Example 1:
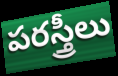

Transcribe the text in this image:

పరస్త్రీలు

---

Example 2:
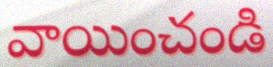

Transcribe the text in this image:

వాయించండి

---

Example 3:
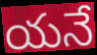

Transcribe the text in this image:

యనే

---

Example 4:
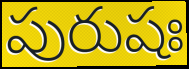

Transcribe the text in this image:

పురుషః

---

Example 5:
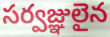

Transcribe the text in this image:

సర్వజ్ఞులైన